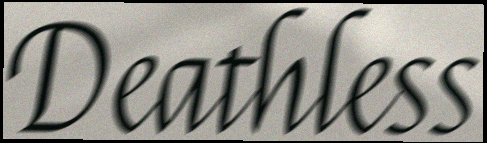
Deathless